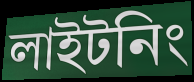
লাইটনিং